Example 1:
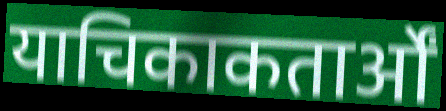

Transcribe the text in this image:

याचिकाकतार्ओं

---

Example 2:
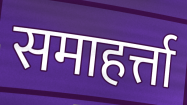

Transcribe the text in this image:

समाहर्त्ता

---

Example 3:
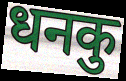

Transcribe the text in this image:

धनकु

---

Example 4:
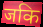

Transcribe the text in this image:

जकि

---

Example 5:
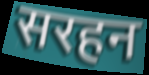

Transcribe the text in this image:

सरहन